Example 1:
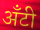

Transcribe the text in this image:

अँटी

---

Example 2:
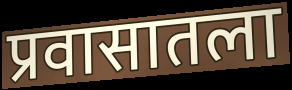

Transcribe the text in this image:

प्रवासातला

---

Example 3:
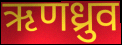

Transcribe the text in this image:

ॠणध्रुव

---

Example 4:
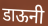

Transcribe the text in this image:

डाऊनी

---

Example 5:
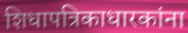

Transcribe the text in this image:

शिधापत्रिकाधारकांना